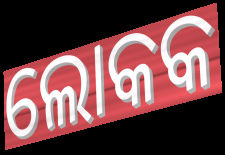
ଲୋକକ